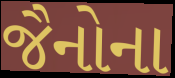
જૈનોના